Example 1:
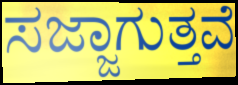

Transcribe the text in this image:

ಸಜ್ಜಾಗುತ್ತವೆ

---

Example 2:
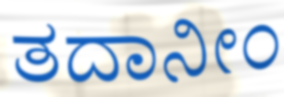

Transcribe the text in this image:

ತದಾನೀಂ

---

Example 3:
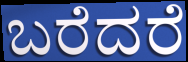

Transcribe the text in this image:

ಬರೆದರೆ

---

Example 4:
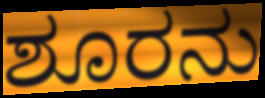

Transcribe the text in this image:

ಶೂರನು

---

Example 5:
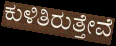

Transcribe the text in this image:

ಕುಳಿತಿರುತ್ತೇವೆ